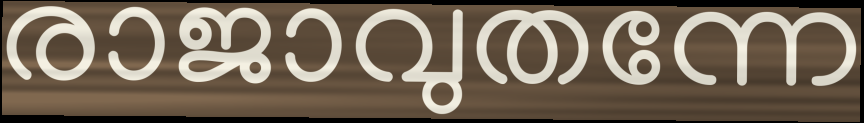
രാജാവുതന്നേ